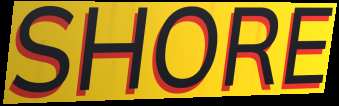
SHORE